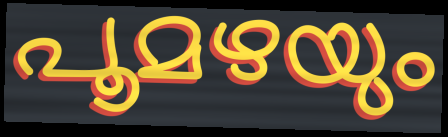
പൂമഴയും